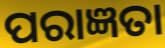
ପରାଜ୍ଞତା